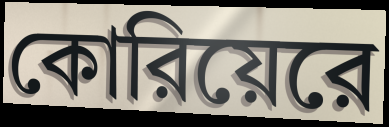
কোরিয়েরে